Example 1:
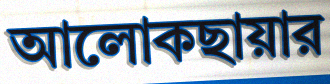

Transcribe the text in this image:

আলোকছায়ার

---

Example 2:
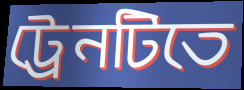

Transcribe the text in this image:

ট্রেনটিতে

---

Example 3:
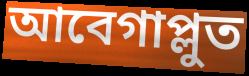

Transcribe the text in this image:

আবেগাপ্লুত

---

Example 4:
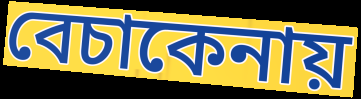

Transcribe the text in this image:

বেচাকেনায়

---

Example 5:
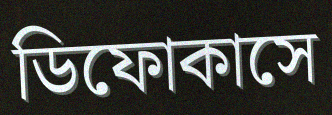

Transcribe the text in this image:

ডিফোকাসে